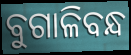
ବୁଗାଳିବନ୍ଧ